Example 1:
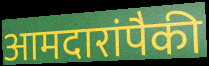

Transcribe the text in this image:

आमदारांपैकी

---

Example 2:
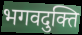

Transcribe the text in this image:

भगवदुक्ति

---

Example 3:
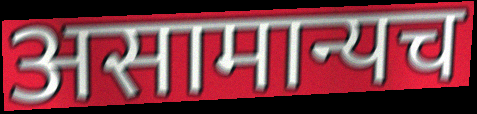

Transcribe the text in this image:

असामान्यच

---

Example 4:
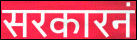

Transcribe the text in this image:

सरकारनं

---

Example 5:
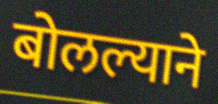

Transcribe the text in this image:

बोलल्याने